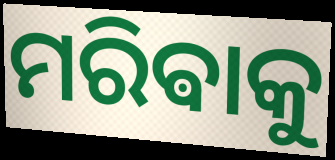
ମରିଵାକୁ